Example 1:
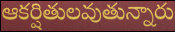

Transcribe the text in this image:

ఆకర్షితులవుతున్నారు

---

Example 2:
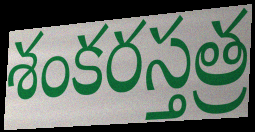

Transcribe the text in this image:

శంకరస్తత్ర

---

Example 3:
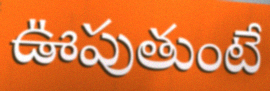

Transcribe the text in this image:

ఊపుతుంటే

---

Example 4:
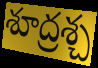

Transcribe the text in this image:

శూద్రశ్చ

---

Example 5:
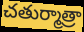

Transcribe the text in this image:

చతుర్మాత్రా